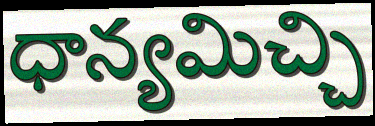
ధాన్యమిచ్చి